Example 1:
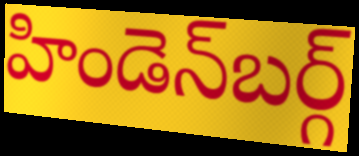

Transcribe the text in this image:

హిండెన్‌బర్గ్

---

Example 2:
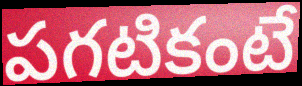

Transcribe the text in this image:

పగటికంటే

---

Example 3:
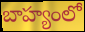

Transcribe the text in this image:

బాహ్యంలో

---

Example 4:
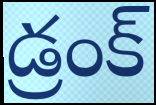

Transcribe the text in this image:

డ్రంక్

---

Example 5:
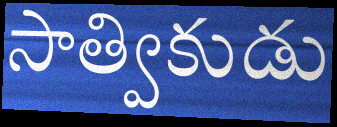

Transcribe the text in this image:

సాత్వికుడు